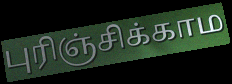
புரிஞ்சிக்காம